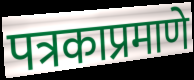
पत्रकाप्रमाणे